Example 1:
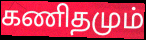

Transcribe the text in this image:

கணிதமும்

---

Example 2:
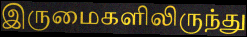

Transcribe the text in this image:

இருமைகளிலிருந்து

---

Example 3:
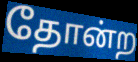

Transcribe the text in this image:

தோன்ற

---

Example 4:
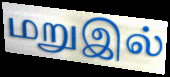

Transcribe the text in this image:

மறுஇல்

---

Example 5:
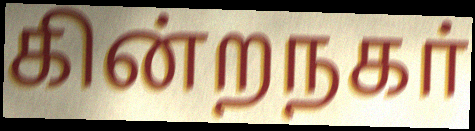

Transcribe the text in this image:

கின்றநகர்